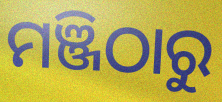
ମଞ୍ଜିଠାରୁ